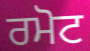
ਰਮੋਟ